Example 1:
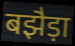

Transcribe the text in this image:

बझैड़ा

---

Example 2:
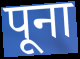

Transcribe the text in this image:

पूना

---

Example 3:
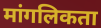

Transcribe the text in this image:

मांगलिकता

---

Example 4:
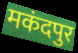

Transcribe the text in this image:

मकंदपुर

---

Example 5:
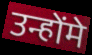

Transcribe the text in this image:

उन्होंमे